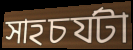
সাহচর্যটা